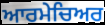
ਆਰਮੇਚਿਅਰ